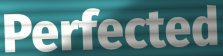
Perfected